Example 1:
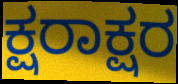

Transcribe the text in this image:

ಕ್ಷರಾಕ್ಷರ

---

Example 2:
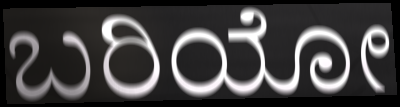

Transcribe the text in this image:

ಬರಿಯೋ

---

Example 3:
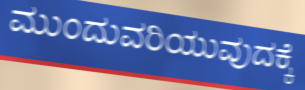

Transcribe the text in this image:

ಮುಂದುವರಿಯುವುದಕ್ಕೆ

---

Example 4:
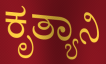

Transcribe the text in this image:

ಕೃತ್ಯಾನಿ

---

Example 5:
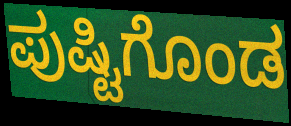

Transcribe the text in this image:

ಪುಷ್ಟಿಗೊಂಡ